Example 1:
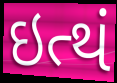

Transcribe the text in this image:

ઇત્થં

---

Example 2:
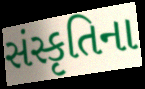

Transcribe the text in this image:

સંસ્કૃતિના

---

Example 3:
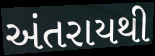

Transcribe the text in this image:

અંતરાયથી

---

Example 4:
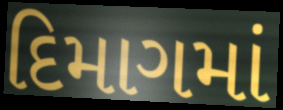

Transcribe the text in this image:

દિમાગમાં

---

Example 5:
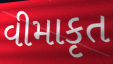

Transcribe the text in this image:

વીમાકૃત